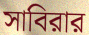
সাবিরার